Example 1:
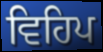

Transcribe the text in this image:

ਵਿਹਿਪ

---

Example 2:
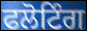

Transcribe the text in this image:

ਫਲੋਟਿੰਗ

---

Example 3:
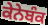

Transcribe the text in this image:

ਕੇਨੇਬੰਕ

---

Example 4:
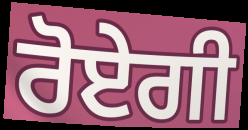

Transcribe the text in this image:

ਰੋਏਗੀ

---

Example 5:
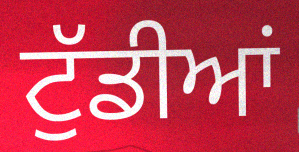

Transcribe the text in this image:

ਟੁੱਡੀਆਂ